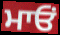
ਮਾਓਂ